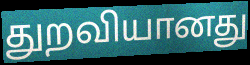
துறவியானது